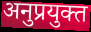
अनुप्रयुक्त